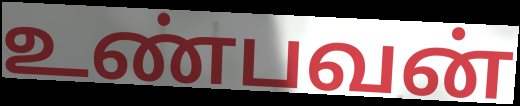
உண்பவன்